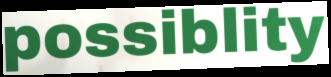
possiblity